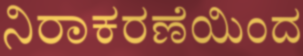
ನಿರಾಕರಣೆಯಿಂದ